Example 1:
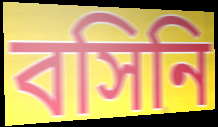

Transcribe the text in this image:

বসিনি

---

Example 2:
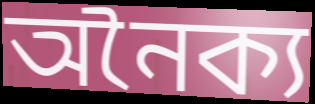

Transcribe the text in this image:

অনৈক্য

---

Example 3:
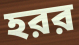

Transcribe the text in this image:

হরর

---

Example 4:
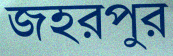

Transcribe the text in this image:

জহরপুর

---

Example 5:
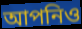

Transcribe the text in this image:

আপনিও